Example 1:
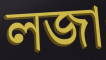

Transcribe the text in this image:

লজা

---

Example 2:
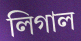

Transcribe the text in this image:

লিগাল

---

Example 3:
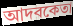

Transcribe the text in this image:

আদবকেতা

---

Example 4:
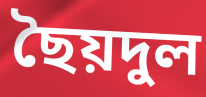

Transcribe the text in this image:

ছৈয়দুল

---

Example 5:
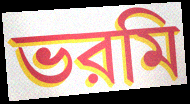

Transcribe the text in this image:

ভরমি